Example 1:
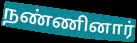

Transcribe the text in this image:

நண்ணினார்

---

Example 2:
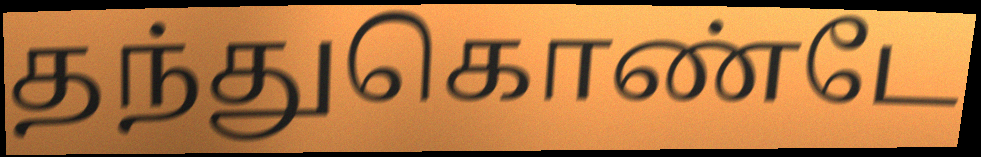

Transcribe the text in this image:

தந்துகொண்டே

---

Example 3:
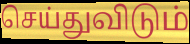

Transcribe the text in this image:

செய்துவிடும்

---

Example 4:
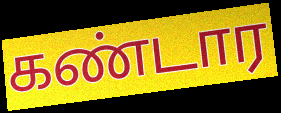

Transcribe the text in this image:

கண்டார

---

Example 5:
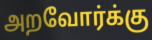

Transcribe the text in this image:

அறவோர்க்கு